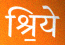
श्रि॒ये